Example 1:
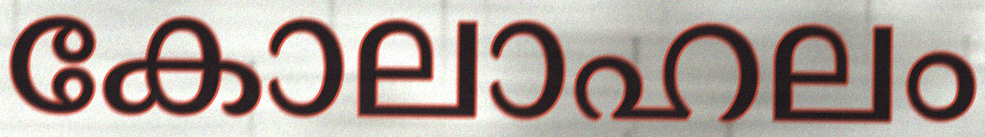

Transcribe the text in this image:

കോലാഹലം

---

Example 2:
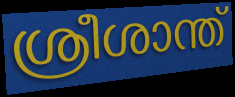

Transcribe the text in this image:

ശ്രീശാന്ത്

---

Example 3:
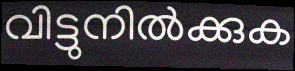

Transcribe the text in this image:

വിട്ടുനിൽക്കുക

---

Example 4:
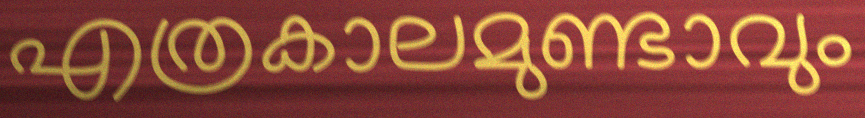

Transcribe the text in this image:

എത്രകാലമുണ്ടാവും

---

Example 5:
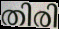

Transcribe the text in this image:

തിരി